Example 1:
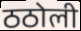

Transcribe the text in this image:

ठठोली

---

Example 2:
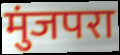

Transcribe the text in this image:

मुंजपरा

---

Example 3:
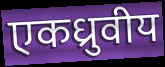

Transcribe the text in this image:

एकध्रुवीय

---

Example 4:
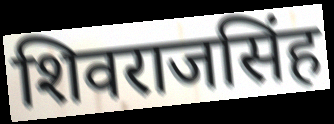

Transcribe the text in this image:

शिवराजसिंह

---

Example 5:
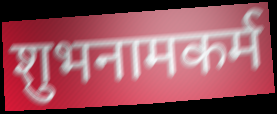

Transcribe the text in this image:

शुभनामकर्म